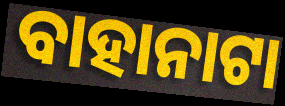
ବାହାନାଟା